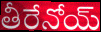
తీరేనోయ్